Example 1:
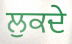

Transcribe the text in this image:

ਲੁਕਦੇ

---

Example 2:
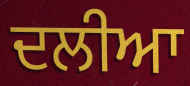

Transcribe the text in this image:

ਦਲੀਆ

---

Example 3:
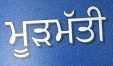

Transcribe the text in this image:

ਮੂੜਮੱਤੀ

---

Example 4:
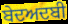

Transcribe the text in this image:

ਬੇਦਅਦਬੀ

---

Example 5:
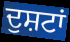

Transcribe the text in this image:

ਦੁਸ਼ਟਾਂ